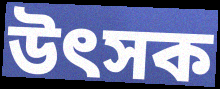
উৎসক